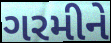
ગરમીને